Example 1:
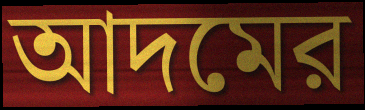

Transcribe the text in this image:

আদমের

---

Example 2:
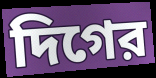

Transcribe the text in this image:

দিগের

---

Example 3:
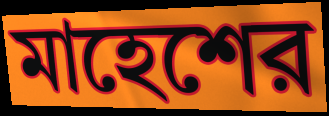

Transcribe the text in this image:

মাহেশের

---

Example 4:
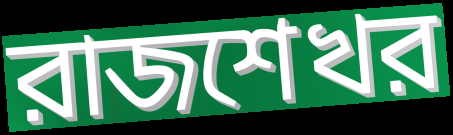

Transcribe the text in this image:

রাজশেখর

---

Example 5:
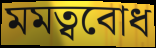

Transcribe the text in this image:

মমত্ববোধ